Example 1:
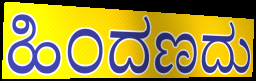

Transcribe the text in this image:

ಹಿಂದಣದು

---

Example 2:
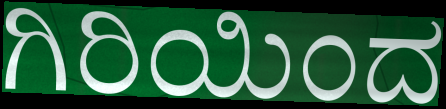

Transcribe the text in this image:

ಗಿರಿಯಿಂದ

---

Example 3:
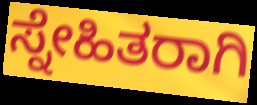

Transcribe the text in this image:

ಸ್ನೇಹಿತರಾಗಿ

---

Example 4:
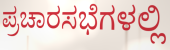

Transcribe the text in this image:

ಪ್ರಚಾರಸಭೆಗಳಲ್ಲಿ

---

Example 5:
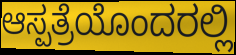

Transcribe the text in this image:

ಆಸ್ಪತ್ರೆಯೊಂದರಲ್ಲಿ